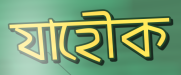
যাহৌক